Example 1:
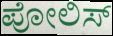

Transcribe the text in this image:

ಪೋಲಿಸ್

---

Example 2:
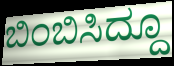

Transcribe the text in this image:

ಬಿಂಬಿಸಿದ್ದೂ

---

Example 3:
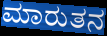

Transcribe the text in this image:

ಮಾರುತನ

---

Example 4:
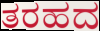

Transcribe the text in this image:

ತರಹದ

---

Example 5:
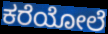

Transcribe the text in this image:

ಕರೆಯೋಲೆ